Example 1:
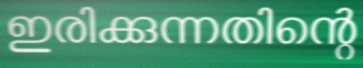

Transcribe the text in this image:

ഇരിക്കുന്നതിന്റെ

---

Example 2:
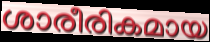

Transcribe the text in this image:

ശാരീരികമായ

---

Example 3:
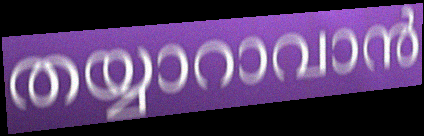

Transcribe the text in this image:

തയ്യാറാവാൻ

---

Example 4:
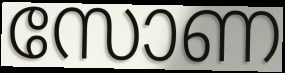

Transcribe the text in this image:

സോണ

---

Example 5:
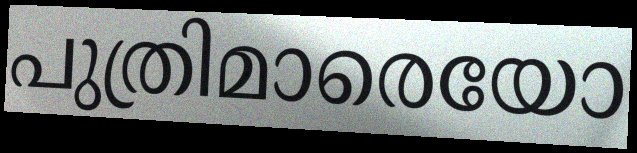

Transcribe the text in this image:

പുത്രിമാരെയോ